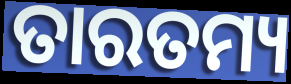
ତାରତମ୍ୟ